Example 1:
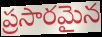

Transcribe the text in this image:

ప్రసారమైన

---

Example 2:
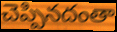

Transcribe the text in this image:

చెప్పినదంతా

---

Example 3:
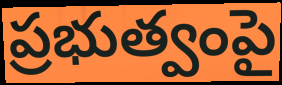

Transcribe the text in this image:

ప్రభుత్వంపై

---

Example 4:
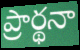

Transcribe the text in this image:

ప్రార్థనా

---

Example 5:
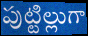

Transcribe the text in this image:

పుట్టిల్లుగా